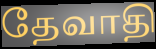
தேவாதி